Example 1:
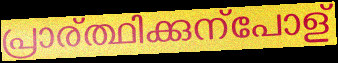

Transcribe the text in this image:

പ്രാര്ത്ഥിക്കുന്പോള്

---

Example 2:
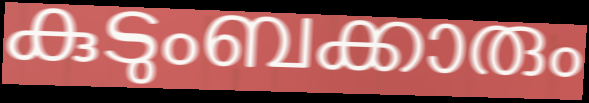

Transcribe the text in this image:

കുടുംബക്കാരും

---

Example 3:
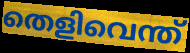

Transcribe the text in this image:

തെളിവെന്ത്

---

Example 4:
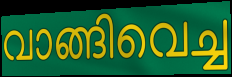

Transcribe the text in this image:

വാങ്ങിവെച്ച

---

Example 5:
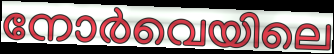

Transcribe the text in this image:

നോർവെയിലെ